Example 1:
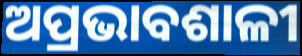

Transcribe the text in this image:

ଅପ୍ରଭାବଶାଳୀ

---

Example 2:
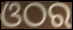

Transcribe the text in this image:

ଓଠର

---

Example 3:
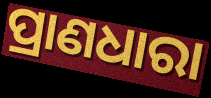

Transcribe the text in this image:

ପ୍ରାଣଧାରା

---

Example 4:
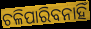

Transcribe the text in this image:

ଚଳିପାରିବନାହିଁ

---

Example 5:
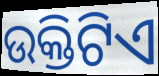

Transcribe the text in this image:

ଉକ୍ତିଟିଏ